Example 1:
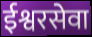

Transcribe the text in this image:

ईश्वरसेवा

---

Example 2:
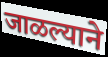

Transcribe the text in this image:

जाळल्याने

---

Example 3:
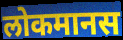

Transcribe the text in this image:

लोकमानस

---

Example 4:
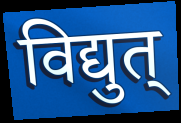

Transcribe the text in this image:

विद्युत्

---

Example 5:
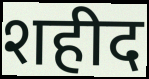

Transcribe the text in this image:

शहीद